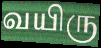
வயிரு